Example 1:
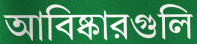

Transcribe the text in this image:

আবিষ্কারগুলি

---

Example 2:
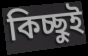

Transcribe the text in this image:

কিচ্ছুই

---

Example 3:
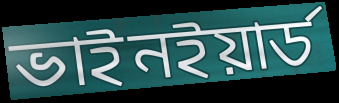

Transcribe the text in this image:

ভাইনইয়ার্ড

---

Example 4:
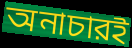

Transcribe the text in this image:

অনাচারই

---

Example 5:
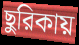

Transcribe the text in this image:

ছুরিকায়